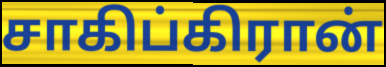
சாகிப்கிரான்